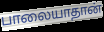
பாலையாதான்